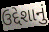
ઉદ્દેશાનું